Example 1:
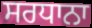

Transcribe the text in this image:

ਸਰਧਾਨਾ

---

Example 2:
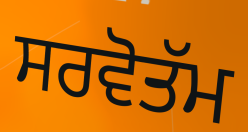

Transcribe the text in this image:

ਸਰਵੋਤੱਮ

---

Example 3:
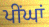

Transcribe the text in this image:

ਪੀਂਘਾਂ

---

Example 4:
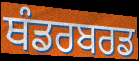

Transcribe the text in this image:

ਥੰਡਰਬਰਡ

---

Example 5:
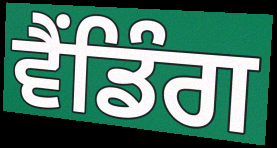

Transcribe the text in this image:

ਵੈਂਡਿੰਗ